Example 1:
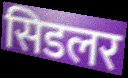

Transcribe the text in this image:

सिडलर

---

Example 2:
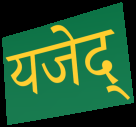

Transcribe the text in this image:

यजेद्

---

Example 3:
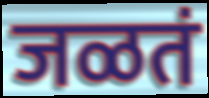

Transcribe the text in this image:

जळतं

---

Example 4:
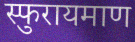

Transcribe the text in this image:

स्फुरायमाण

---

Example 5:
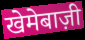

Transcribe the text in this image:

खेमेबाज़ी